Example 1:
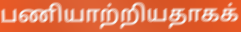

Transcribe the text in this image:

பணியாற்றியதாகக்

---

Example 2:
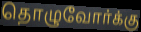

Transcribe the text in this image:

தொழுவோர்க்கு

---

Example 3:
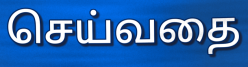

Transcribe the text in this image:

செய்வதை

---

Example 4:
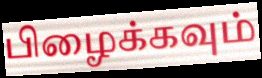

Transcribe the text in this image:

பிழைக்கவும்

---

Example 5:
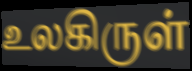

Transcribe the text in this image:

உலகிருள்